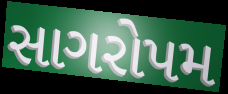
સાગરોપમ